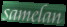
samelan